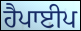
ਹੈਪਾਈਪ